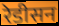
रेडीसन